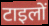
टाइलों